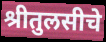
श्रीतुलसीचे